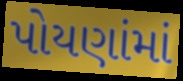
પોયણાંમાં